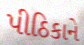
પીઠિકાને